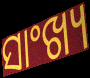
ସାଂଖ୍ଯ